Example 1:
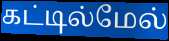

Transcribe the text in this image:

கட்டில்மேல்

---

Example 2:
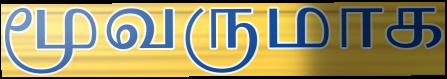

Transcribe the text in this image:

மூவருமாக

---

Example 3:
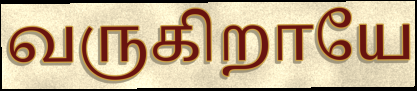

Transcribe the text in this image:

வருகிறாயே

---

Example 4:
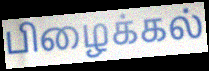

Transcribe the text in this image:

பிழைக்கல்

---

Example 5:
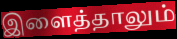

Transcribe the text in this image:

இளைத்தாலும்